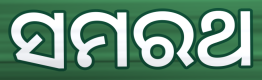
ସମରଥ